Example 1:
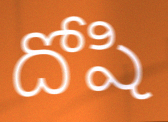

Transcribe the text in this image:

దోషి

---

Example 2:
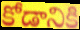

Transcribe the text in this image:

కోడానికి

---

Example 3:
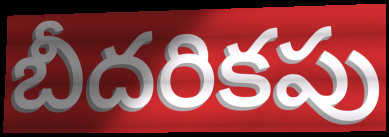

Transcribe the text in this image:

బీదరికపు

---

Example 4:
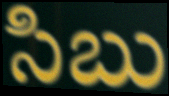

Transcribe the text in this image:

సిబు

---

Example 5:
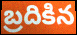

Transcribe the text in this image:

బ్రదికిన